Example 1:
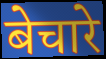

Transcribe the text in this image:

बेचारे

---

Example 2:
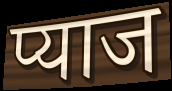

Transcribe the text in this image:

प्याज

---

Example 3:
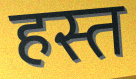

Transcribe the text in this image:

हस्त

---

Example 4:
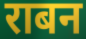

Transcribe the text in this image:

राबन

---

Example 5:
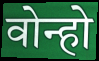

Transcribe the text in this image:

वोन्हो